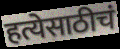
हत्येसाठीचं